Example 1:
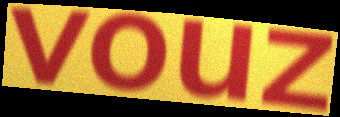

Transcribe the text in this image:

vouz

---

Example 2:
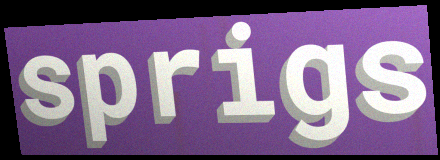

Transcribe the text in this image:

sprigs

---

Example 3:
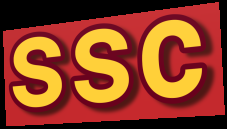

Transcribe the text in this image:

ssc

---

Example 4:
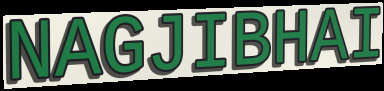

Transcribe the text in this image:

NAGJIBHAI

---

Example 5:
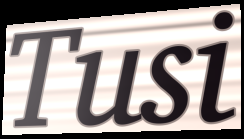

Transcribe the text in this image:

Tusi